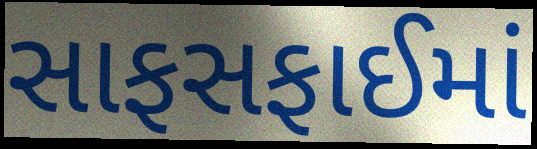
સાફસફાઈમાં